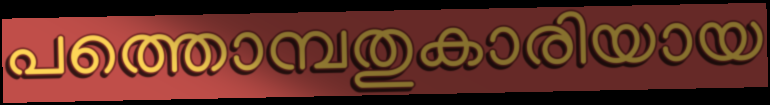
പത്തൊമ്പതുകാരിയായ